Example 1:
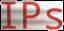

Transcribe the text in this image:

IPs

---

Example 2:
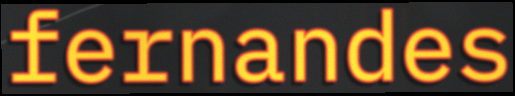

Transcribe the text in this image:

fernandes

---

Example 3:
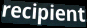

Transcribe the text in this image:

recipient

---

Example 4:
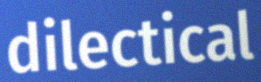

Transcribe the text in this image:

dilectical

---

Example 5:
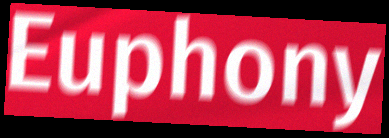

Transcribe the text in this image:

Euphony